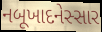
નબૂખાદનેસ્સાર